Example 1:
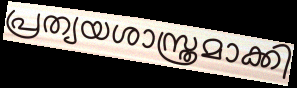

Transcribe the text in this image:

പ്രത്യയശാസ്ത്രമാക്കി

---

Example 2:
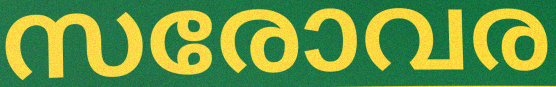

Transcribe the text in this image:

സരോവര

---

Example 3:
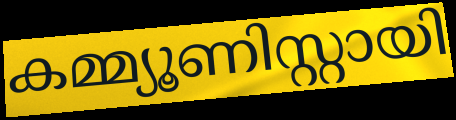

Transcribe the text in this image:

കമ്മ്യൂണിസ്റ്റായി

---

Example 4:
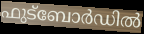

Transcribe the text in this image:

ഫുട്ബോർഡിൽ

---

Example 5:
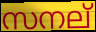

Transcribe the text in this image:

സനല്